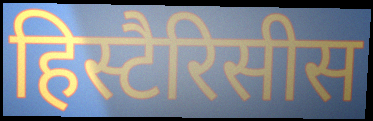
हिस्टैरिसीस